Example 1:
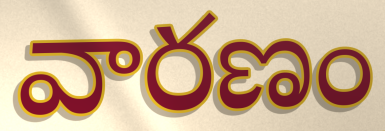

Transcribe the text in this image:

వారణం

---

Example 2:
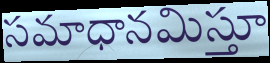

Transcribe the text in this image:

సమాధానమిస్తూ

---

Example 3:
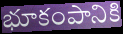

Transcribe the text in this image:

భూకంపానికి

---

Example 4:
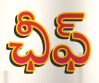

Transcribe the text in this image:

ఛీఫ్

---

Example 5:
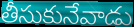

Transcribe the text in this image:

తీసుకునేవాడు